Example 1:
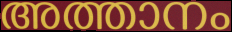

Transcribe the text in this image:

അത്താനം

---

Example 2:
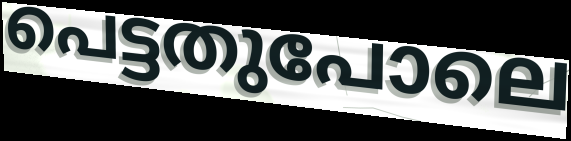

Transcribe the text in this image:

പെട്ടതുപോലെ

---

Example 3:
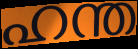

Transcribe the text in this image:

ഹന്ത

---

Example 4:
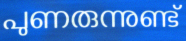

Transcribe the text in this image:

പുണരുന്നുണ്ട്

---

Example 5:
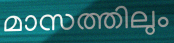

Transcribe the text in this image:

മാസത്തിലും